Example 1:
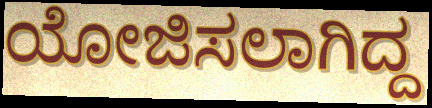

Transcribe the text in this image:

ಯೋಜಿಸಲಾಗಿದ್ದ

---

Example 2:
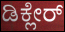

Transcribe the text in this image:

ಡಿಕ್ಲೇರ್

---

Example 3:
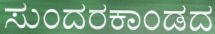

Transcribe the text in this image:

ಸುಂದರಕಾಂಡದ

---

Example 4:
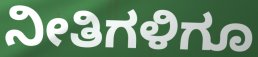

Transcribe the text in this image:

ನೀತಿಗಳಿಗೂ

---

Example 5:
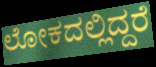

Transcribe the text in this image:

ಲೋಕದಲ್ಲಿದ್ದರೆ